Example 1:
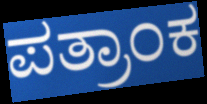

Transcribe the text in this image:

ಪತ್ರಾಂಕ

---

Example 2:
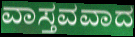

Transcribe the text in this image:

ವಾಸ್ತವವಾದ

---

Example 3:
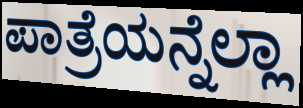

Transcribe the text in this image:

ಪಾತ್ರೆಯನ್ನೆಲ್ಲಾ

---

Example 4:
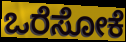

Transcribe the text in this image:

ಒರೆಸೋಕೆ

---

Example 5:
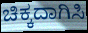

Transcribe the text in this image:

ಚಿಕ್ಕದಾಗಿಸಿ